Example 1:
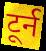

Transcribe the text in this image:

टूर्न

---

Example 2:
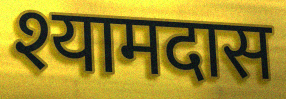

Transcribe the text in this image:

श्यामदास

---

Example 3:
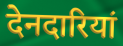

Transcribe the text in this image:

देनदारियां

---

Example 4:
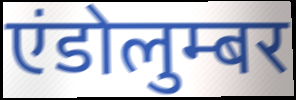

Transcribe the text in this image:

एंडोलुम्बर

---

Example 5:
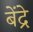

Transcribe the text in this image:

बेंद्रे